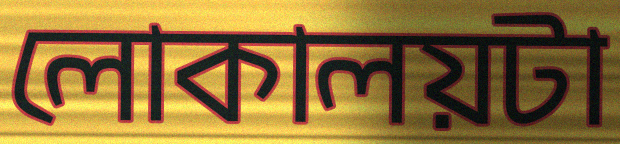
লোকালয়টা